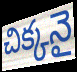
చిక్కనై